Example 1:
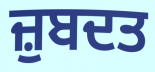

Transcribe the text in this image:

ਜ਼ੁਬਦਤ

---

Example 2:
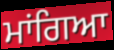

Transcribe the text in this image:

ਮਾਂਗਿਆ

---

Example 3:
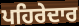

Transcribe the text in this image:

ਪਹਿਰੇਦਾਰ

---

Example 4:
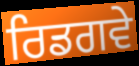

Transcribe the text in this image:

ਰਿਡਗਵੇ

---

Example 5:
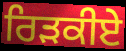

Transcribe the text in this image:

ਰਿੜਕੀਏ